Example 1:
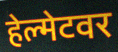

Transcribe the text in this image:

हेल्मेटवर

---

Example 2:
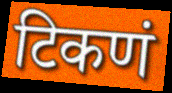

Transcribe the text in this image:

टिकणं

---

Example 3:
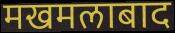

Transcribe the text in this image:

मखमलाबाद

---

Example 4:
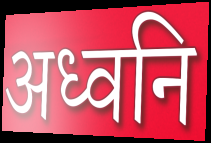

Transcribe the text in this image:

अध्वनि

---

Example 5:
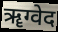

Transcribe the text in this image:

ॠग्वेद